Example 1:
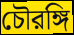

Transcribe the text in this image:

চৌরঙ্গি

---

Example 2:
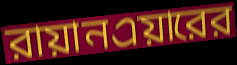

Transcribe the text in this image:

রায়ানএয়ারের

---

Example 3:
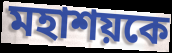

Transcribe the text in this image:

মহাশয়কে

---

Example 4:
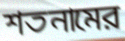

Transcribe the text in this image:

শতনামের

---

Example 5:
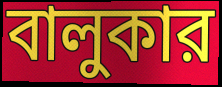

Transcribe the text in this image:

বালুকার